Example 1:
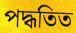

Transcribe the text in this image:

পদ্ধতিত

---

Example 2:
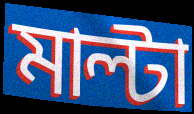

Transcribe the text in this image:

মাল্টা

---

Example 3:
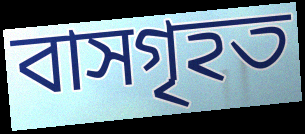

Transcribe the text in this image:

বাসগৃহত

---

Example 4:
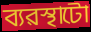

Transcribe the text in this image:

ব্যৱস্থাটো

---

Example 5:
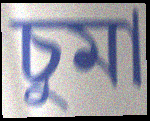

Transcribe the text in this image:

চুমা